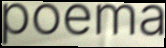
poema